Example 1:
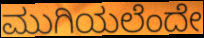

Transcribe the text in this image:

ಮುಗಿಯಲೆಂದೇ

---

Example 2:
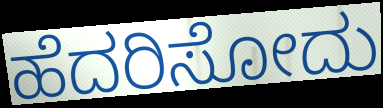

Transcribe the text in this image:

ಹೆದರಿಸೋದು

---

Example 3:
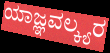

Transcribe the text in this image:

ಯಾಜ್ಞವಲ್ಕ್ಯರ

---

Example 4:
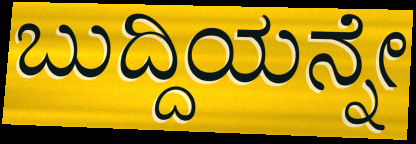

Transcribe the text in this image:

ಬುದ್ದಿಯನ್ನೇ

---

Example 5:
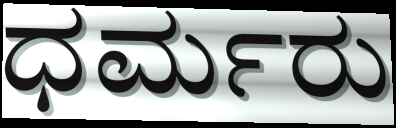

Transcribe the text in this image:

ಧರ್ಮರು